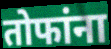
तोफांना